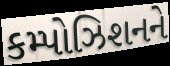
કમ્પોઝિશનને